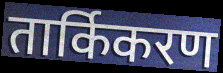
तार्किकरण